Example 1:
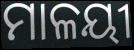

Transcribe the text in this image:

ମାଳୟୀ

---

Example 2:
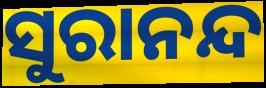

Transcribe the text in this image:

ସୁରାନନ୍ଦ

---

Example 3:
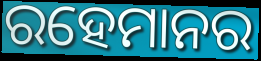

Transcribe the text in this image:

ରହେମାନର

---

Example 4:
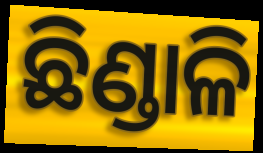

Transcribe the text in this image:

ଛିଣ୍ଡାଳି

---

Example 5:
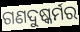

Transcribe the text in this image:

ଗଣଦୁଷ୍କର୍ମର